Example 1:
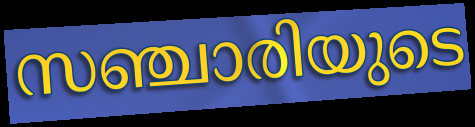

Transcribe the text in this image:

സഞ്ചാരിയുടെ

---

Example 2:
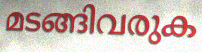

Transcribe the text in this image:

മടങ്ങിവരുക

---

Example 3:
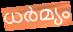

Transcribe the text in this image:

ധർമ്യം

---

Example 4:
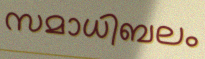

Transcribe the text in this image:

സമാധിബലം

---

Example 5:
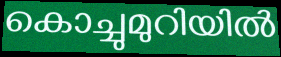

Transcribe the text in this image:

കൊച്ചുമുറിയിൽ